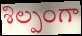
శిల్పంగా